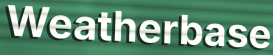
Weatherbase